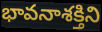
భావనాశక్తిని